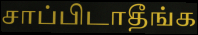
சாப்பிடாதீங்க